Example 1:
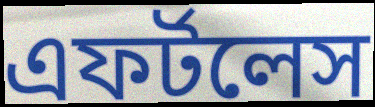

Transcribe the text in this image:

এফর্টলেস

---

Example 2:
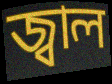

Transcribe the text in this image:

জ্বাল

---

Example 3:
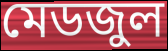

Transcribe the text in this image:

মেডজুল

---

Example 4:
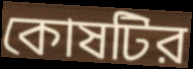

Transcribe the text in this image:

কোষটির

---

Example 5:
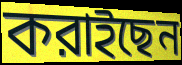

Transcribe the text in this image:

করাইছেন